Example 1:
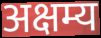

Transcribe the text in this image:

अक्षम्य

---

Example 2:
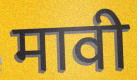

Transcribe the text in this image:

मावी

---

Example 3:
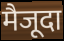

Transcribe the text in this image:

मैजूदा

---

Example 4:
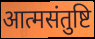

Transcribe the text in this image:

आत्मसंतुष्टि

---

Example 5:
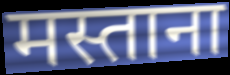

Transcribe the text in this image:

मस्ताना